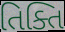
તિક્તિ